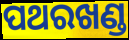
ପଥରଖଣ୍ଡ